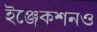
ইঞ্জেকশনও